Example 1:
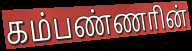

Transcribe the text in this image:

கம்பண்ணரின்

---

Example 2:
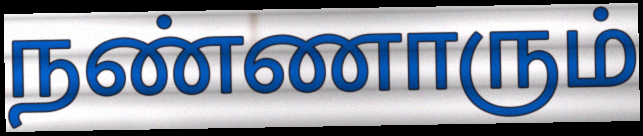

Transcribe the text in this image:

நண்ணாரும்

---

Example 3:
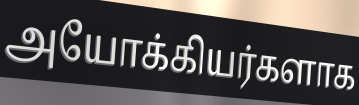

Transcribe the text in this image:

அயோக்கியர்களாக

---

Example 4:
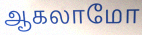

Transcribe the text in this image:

ஆகலாமோ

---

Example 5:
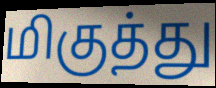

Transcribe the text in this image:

மிகுத்து